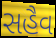
સહૈવ